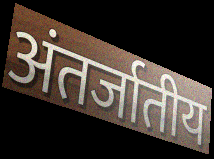
अंतर्जातीय